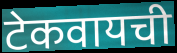
टेकवायची